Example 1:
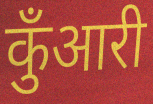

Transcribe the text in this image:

कुँआरी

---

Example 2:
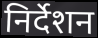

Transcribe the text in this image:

निर्देशन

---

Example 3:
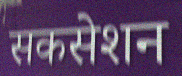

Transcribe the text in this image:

सकसेशन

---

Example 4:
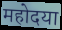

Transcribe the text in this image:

महोदया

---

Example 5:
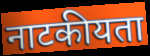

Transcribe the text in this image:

नाटकीयता